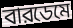
বারডেমে